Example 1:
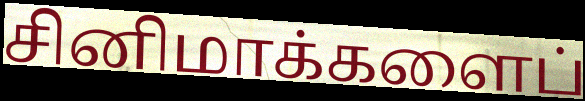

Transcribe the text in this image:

சினிமாக்களைப்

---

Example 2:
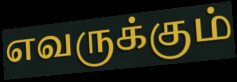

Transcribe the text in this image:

எவருக்கும்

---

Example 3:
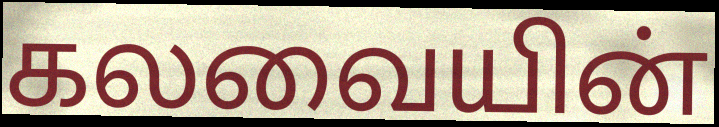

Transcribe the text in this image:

கலவையின்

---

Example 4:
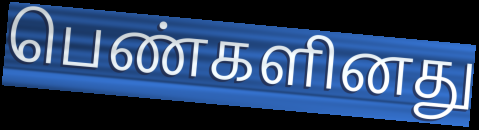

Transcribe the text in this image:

பெண்களினது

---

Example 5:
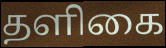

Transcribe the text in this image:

தளிகை